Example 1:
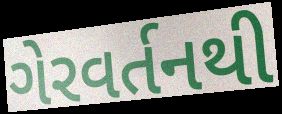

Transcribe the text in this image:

ગેરવર્તનથી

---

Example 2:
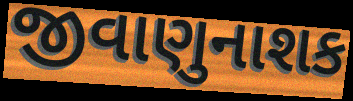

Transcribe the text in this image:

જીવાણુનાશક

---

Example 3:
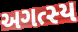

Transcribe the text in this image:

અગત્સ્ય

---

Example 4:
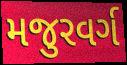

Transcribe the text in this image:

મજુરવર્ગ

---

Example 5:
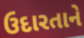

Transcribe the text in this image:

ઉદારતાને